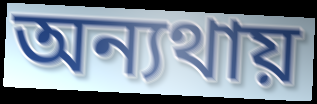
অন্যথায়